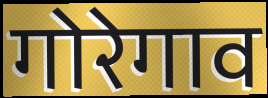
गोरेगाव